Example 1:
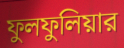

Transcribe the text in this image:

ফুলফুলিয়ার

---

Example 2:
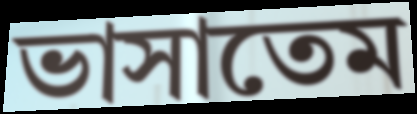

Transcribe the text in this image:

ভাসাতেম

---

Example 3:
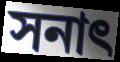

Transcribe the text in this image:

সনাৎ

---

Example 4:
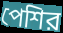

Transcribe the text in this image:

পেশির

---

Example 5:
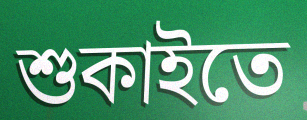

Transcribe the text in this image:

শুকাইতে